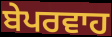
ਬੇਪਰਵਾਹ